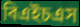
বিএইচএস